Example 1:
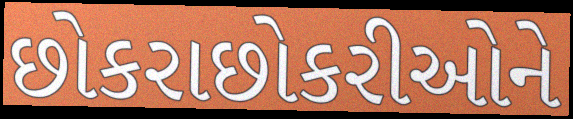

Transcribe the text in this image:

છોકરાછોકરીઓને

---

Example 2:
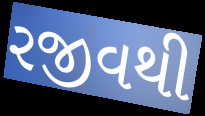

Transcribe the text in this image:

રજીવથી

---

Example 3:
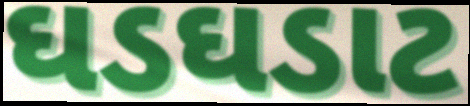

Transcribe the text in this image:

ઘડઘડાટ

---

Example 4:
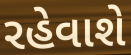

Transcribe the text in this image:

રહેવાશે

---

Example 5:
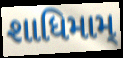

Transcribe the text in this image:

શાધિમામ્